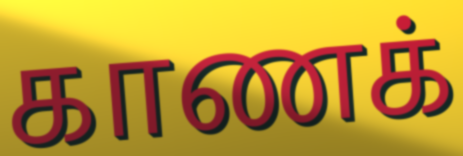
காணக்